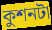
কুশনটা